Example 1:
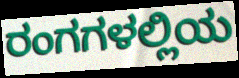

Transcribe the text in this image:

ರಂಗಗಳಲ್ಲಿಯ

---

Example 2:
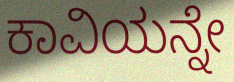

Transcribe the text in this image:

ಕಾವಿಯನ್ನೇ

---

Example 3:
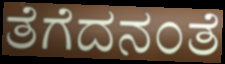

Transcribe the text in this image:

ತೆಗೆದನಂತೆ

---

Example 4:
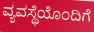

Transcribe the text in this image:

ವ್ಯವಸ್ಥೆಯೊಂದಿಗೆ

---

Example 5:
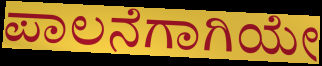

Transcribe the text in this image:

ಪಾಲನೆಗಾಗಿಯೇ